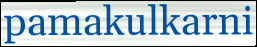
pamakulkarni